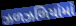
ઝળઝળિયાંમાં